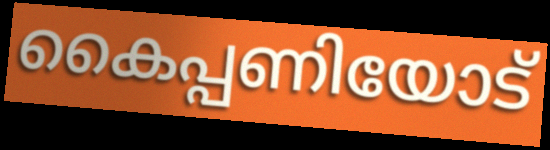
കൈപ്പണിയോട്